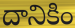
దానికిం